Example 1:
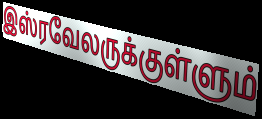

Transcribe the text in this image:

இஸ்ரவேலருக்குள்ளும்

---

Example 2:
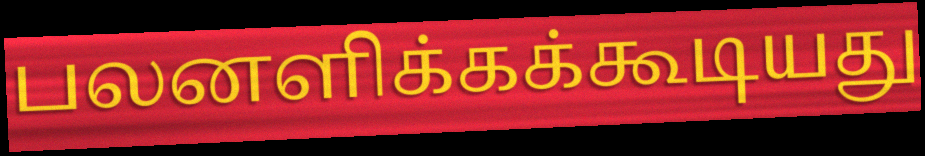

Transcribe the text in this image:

பலனளிக்கக்கூடியது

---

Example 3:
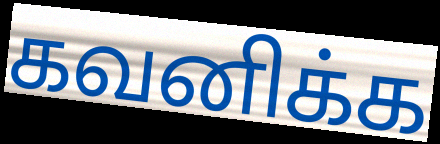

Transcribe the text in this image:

கவனிக்க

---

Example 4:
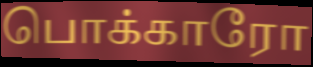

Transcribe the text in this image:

பொக்காரோ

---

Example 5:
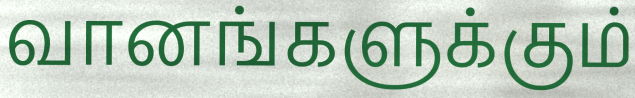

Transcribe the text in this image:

வானங்களுக்கும்